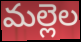
మల్లెల